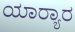
ಯಾರ‍್ಯಾರ